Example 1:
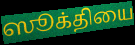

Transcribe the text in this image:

ஸூக்தியை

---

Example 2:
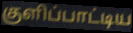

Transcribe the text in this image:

குளிப்பாட்டிய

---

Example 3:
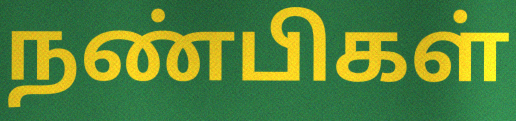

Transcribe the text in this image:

நண்பிகள்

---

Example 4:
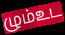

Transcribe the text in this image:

ழும்உட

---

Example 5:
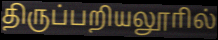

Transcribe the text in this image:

திருப்பறியலூரில்